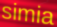
simia